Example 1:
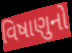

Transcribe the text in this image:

વિષાણુનો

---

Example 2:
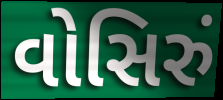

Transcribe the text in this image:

વોસિરું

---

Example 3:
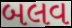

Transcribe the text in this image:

બલવ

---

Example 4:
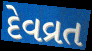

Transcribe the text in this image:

દેવવ્રત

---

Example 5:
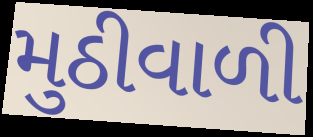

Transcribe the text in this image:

મુઠીવાળી